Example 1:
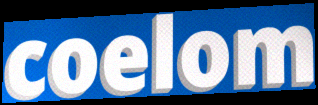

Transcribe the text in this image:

coelom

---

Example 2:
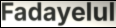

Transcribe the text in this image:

Fadayelul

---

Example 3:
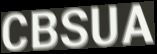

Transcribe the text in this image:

CBSUA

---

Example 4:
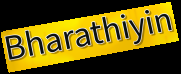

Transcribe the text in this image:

Bharathiyin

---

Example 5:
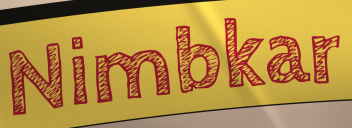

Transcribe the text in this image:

Nimbkar